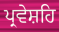
ਪ੍ਰਵੇਸ਼ਹਿ